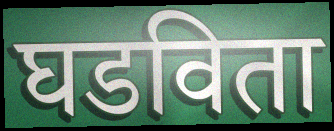
घडविता